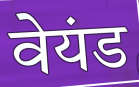
वेयंड